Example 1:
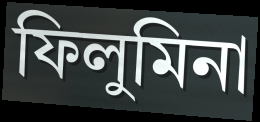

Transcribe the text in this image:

ফিলুমিনা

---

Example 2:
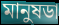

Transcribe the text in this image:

মানুষডা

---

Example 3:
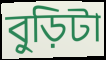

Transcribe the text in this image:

বুড়িটা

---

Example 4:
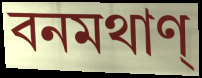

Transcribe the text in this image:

বনমথাণ্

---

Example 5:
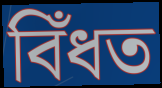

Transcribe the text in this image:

বিঁধত